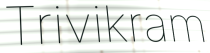
Trivikram